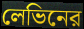
লেভিনের